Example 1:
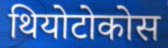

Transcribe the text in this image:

थियोटोकोस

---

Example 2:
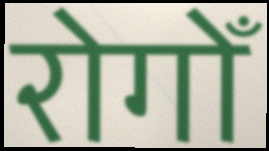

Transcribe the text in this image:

रोगोँ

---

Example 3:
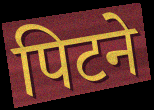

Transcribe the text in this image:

पिटने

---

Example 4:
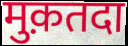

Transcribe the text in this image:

मुक़तदा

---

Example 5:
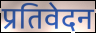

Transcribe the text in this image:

प्रतिवेदन